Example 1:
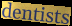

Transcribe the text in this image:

dentists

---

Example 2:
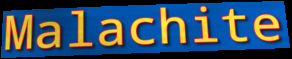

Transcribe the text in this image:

Malachite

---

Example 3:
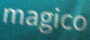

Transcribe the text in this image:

magico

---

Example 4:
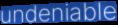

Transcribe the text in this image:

undeniable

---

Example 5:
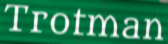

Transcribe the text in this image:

Trotman